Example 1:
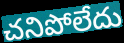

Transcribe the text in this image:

చనిపోలేదు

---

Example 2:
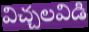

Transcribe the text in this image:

విచ్చలవిడి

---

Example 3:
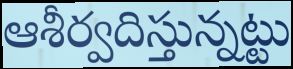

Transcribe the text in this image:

ఆశీర్వదిస్తున్నట్టు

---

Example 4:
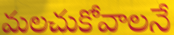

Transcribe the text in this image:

మలచుకోవాలనే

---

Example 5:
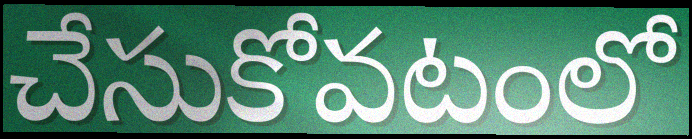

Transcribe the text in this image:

చేసుకోవటంలో